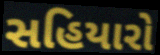
સહિયારો